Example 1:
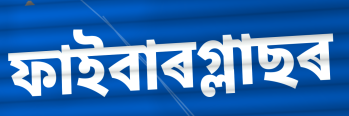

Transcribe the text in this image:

ফাইবাৰগ্লাছৰ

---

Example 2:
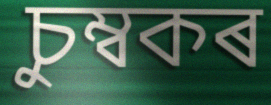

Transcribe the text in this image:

চুম্বকৰ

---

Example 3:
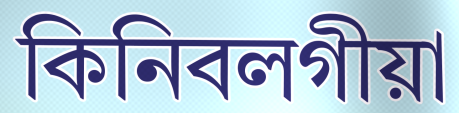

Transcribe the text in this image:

কিনিবলগীয়া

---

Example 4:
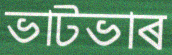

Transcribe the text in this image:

ভাটভাৰ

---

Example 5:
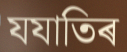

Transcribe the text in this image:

যযাতিৰ